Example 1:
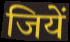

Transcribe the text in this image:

जियें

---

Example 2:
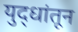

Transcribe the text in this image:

युद्धांतून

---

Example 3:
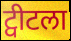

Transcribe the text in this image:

ट्वीटला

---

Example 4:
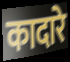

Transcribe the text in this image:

कादारे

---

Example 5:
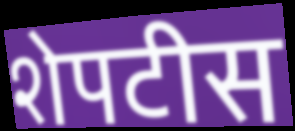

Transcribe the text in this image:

शेपटीस